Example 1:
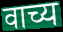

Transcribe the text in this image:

वाच्य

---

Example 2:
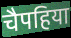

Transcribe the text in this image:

चैपहिया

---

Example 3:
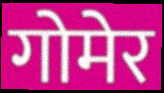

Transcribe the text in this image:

गोमेर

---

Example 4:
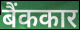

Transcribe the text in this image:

बैंककार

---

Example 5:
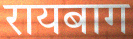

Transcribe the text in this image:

रायबाग